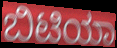
ಬಿಟಿಯಾ